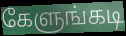
கேளுங்கடி